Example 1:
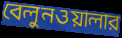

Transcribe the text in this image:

বেলুনওয়ালার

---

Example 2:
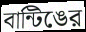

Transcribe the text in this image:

বান্টিঙের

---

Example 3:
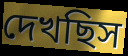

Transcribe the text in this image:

দেখছিস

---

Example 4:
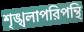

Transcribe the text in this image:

শৃঙ্খলাপরিপন্থি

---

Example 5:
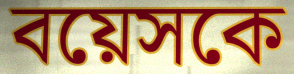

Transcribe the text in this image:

বয়েসকে